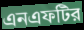
এনএফটির